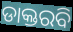
ଡାକ୍ତରବି